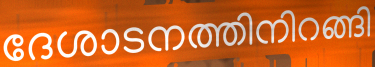
ദേശാടനത്തിനിറങ്ങി